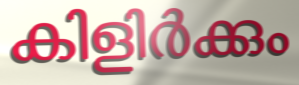
കിളിർക്കും